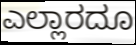
ಎಲ್ಲಾರದೂ